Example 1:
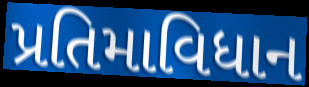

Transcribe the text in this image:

પ્રતિમાવિધાન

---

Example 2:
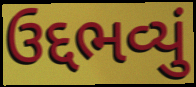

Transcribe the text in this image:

ઉદ્દભવ્યું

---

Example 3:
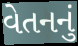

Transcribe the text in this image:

વેતનનું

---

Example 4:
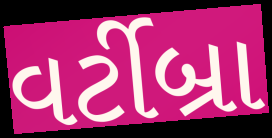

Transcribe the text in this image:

વર્ટીબ્રા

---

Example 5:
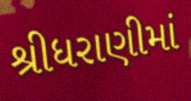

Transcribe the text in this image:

શ્રીધરાણીમાં